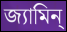
জ্যামিন্